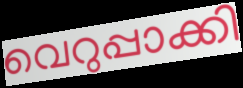
വെറുപ്പാക്കി